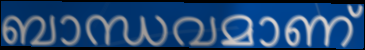
ബാന്ധവമാണ്